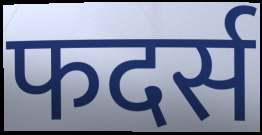
फदर्स